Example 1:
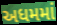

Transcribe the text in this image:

અધમમાં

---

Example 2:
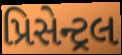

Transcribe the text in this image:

પ્રિસેન્ટ્રલ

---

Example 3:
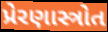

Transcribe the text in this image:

પ્રેરણાસ્ત્રોત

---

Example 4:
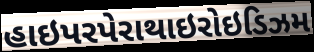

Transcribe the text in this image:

હાઇપરપેરાથાઇરોઇડિઝમ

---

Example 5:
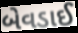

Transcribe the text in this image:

બેવડાઈ